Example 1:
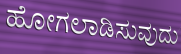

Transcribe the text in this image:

ಹೋಗಲಾಡಿಸುವುದು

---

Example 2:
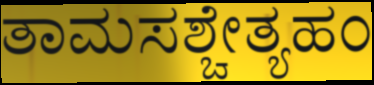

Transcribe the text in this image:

ತಾಮಸಶ್ಚೇತ್ಯಹಂ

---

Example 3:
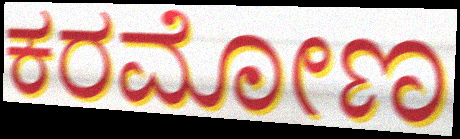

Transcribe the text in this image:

ಕರಮೋಣ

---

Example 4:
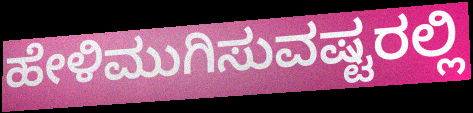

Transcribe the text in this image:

ಹೇಳಿಮುಗಿಸುವಷ್ಟರಲ್ಲಿ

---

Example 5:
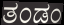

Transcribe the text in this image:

ತಂಡಂ